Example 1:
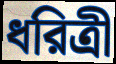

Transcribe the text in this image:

ধরিত্রী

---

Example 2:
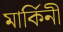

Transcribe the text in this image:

মার্কিনী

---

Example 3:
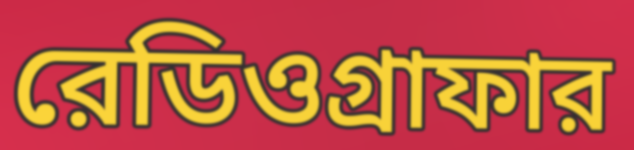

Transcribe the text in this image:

রেডিওগ্রাফার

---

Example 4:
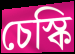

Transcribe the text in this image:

চেস্কি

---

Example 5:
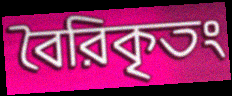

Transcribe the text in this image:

বৈরিকৃতং